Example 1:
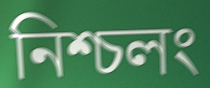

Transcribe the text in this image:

নিশ্চলং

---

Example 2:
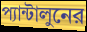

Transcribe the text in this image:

প্যান্টালুনের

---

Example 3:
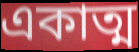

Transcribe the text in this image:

একাত্ম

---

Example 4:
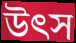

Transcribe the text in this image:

উৎস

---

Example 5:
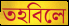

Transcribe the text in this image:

তহবিলে